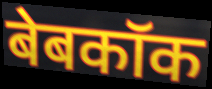
बेबकॉक